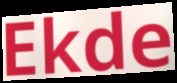
Ekde